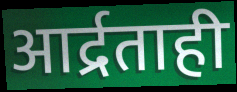
आर्द्रताही